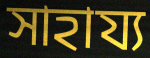
সাহায্য